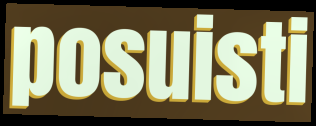
posuisti